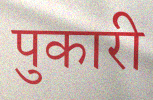
पुकारी